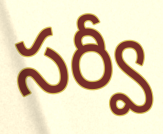
సర్వీ